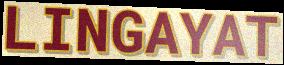
LINGAYAT